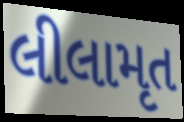
લીલામૃત